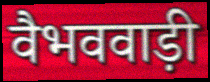
वैभववाड़ी